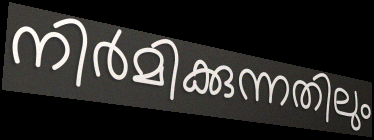
നിർമിക്കുന്നതിലും